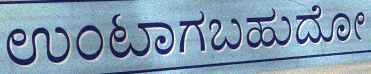
ಉಂಟಾಗಬಹುದೋ